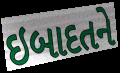
ઇબાદતને